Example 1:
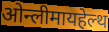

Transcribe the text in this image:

ओन्लीमायहेल्थ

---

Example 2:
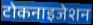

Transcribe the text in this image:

टोकनाइजेशन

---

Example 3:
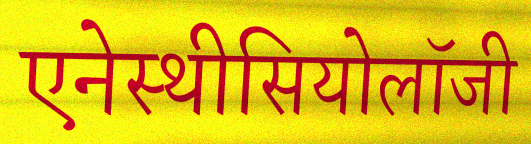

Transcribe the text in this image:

एनेस्थीसियोलॉजी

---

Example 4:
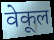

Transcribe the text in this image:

वेकूल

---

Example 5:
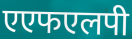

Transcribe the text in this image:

एएफएलपी